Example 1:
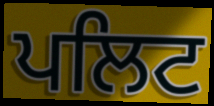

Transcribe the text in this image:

ਪਲਿਟ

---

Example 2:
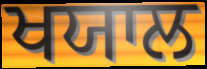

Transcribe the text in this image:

ਖਯਾਲ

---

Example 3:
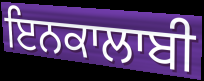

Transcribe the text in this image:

ਇਨਕਾਲਾਬੀ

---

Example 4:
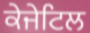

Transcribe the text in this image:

ਕੇਜੇਟਿਲ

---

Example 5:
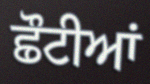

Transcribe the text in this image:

ਛੌਟੀਆਂ